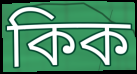
কিক